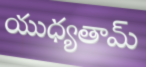
యుధ్యతామ్